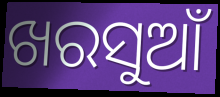
ଖରସୁଆଁ